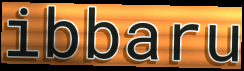
ibbaru